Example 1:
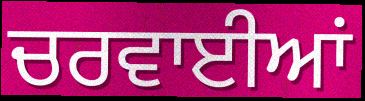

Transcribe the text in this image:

ਚਰਵਾਈਆਂ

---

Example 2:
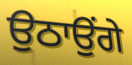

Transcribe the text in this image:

ਉਠਾਉਂਗੇ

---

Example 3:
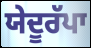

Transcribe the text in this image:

ਯੇਦੂਰੱਪਾ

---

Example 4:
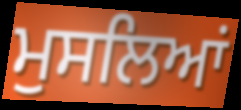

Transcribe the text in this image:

ਮੁਸਲਿਆਂ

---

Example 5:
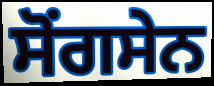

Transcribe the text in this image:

ਸੋਂਗਸੇਨ